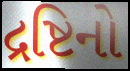
દ્રષ્ટિનો